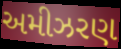
અમીઝરણ